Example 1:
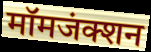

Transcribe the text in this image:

मॉमजंक्शन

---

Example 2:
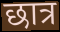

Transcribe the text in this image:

छात्र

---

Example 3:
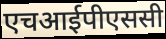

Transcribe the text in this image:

एचआईपीएससी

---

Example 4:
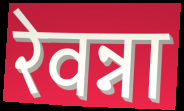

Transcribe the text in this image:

रेवन्ना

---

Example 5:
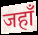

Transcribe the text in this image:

जहाँ